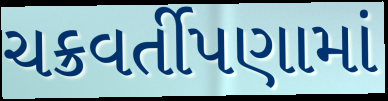
ચક્રવર્તીપણામાં